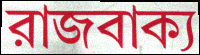
রাজবাক্য